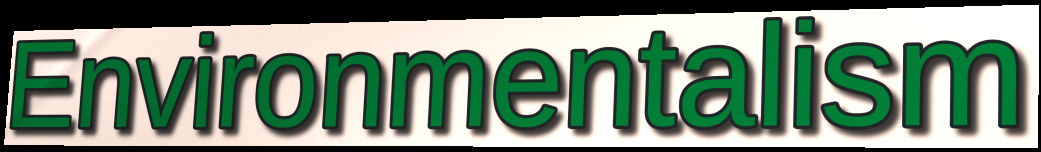
Environmentalism